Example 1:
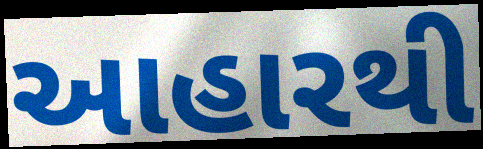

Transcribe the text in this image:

આહારથી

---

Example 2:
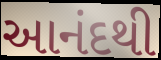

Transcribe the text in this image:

આનંદથી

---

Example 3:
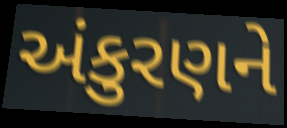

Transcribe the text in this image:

અંકુરણને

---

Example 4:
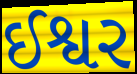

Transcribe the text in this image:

ઈશ્વર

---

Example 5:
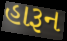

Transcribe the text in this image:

હારૂન